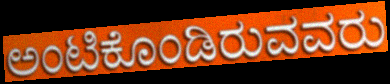
ಅಂಟಿಕೊಂಡಿರುವವರು